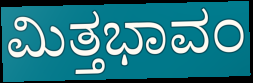
ಮಿತ್ತಭಾವಂ